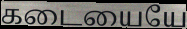
கடையையே